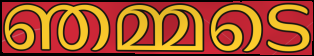
ഞമ്മടെ